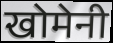
खोमेनी